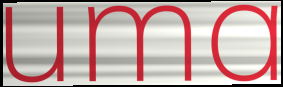
uma